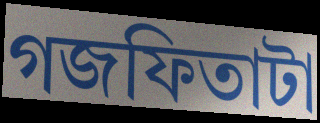
গজফিতাটা